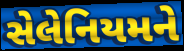
સેલેનિયમને